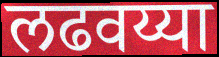
लढवय्या